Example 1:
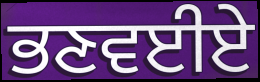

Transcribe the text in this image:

ਭਣਵਈਏ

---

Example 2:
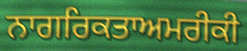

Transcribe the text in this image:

ਨਾਗਰਿਕਤਾਅਮਰੀਕੀ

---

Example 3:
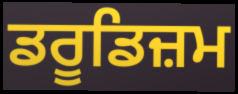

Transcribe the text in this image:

ਡਰੂਡਿਜ਼ਮ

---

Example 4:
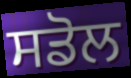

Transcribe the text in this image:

ਸਡੋਲ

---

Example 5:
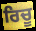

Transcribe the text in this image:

ਰਿਚੂ